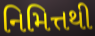
નિમિત્તથી